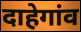
दाहेगांव